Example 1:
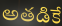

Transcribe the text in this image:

అతడికే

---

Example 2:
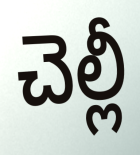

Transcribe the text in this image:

చెల్లీ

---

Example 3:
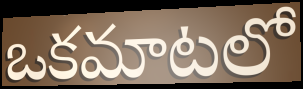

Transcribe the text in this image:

ఒకమాటలో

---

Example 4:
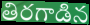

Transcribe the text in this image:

తిరగాడిన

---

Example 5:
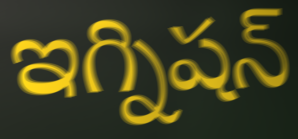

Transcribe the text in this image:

ఇగ్నిషన్